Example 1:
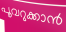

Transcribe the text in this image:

പൂവറുക്കാൻ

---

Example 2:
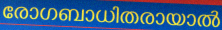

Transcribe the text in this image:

രോഗബാധിതരായാൽ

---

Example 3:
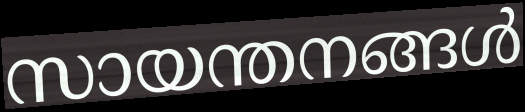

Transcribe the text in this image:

സായന്തനങ്ങൾ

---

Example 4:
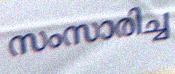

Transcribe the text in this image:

സംസാരിച്ച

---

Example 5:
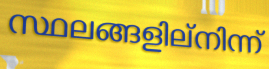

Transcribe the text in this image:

സ്ഥലങ്ങളില്നിന്ന്